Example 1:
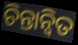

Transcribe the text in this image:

ଚିନ୍ତାନ୍ୱିତ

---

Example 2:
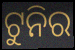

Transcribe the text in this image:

ଟୁନିର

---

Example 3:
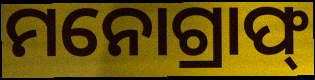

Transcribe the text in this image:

ମନୋଗ୍ରାଫ୍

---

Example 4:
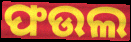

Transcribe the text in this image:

ଫଉଲ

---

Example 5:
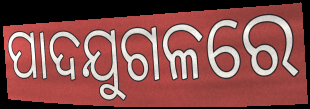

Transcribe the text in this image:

ପାଦଯୁଗଳରେ